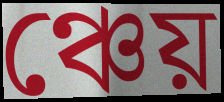
ঞ্চেয়